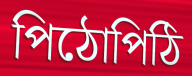
পিঠোপিঠি